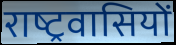
राष्ट्रवासियों